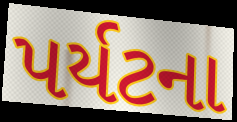
પર્યટના